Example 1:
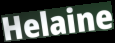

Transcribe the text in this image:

Helaine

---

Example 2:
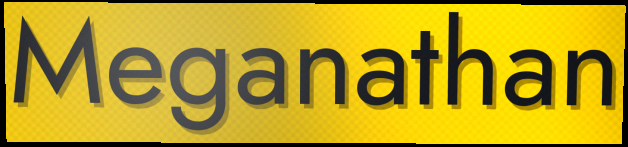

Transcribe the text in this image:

Meganathan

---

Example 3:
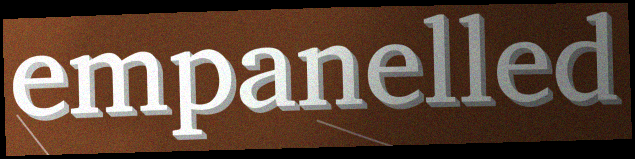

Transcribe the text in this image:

empanelled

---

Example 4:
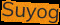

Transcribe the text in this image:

Suyog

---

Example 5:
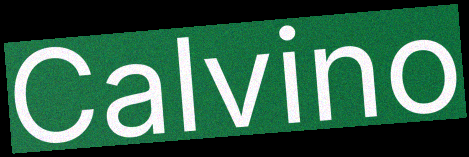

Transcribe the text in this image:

Calvino